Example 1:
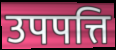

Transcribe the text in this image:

उपपत्ति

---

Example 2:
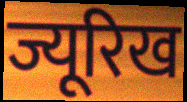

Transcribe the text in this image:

ज्यूरिख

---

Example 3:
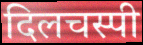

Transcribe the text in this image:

दिलचस्पी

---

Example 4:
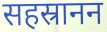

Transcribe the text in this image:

सहस्रानन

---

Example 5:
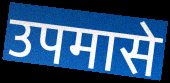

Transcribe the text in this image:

उपमासे